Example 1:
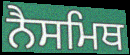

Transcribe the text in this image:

ਨੈਸਮਿਥ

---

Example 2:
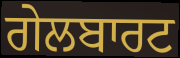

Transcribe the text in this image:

ਗੇਲਬਾਰਟ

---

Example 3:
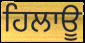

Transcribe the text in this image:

ਹਿਲਾਊ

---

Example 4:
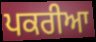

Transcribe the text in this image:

ਪਕਰੀਆ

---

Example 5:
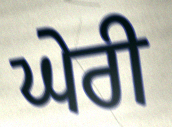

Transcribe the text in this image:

ਘੇਰੀ